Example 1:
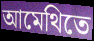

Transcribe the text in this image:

আমেথিতে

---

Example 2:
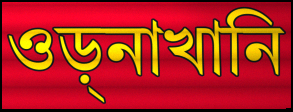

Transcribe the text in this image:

ওড়্নাখানি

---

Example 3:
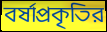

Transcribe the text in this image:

বর্ষাপ্রকৃতির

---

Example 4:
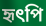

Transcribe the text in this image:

হৃৎপি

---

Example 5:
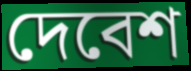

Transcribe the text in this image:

দেবেশ